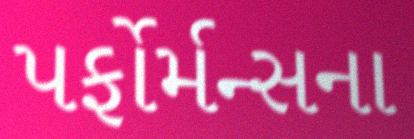
પર્ફોર્મન્સના